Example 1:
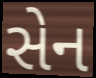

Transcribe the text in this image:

સેન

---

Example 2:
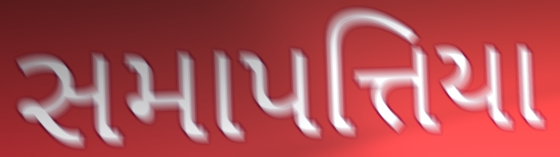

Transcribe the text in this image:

સમાપત્તિયા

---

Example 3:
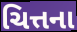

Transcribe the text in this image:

ચિત્તના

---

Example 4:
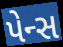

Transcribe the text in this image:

પેન્સ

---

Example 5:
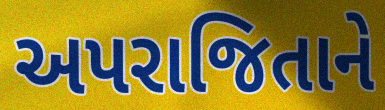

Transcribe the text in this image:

અપરાજિતાને